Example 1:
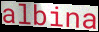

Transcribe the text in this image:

albina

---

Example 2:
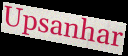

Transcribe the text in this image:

Upsanhar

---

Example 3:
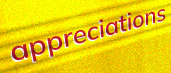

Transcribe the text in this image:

appreciations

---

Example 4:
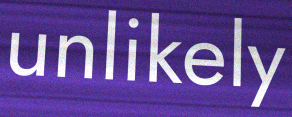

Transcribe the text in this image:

unlikely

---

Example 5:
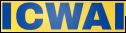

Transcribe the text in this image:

ICWAI